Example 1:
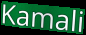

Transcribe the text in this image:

Kamali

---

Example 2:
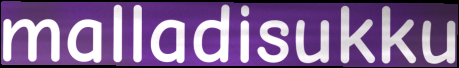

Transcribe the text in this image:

malladisukku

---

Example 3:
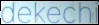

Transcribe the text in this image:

dekechi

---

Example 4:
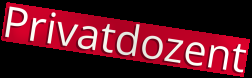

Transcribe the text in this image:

Privatdozent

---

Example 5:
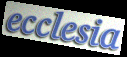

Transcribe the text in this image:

ecclesia